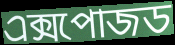
এক্সপোজড